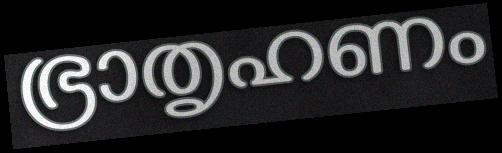
ഭ്രാതൃഹണം